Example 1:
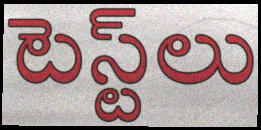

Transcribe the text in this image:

టెస్ట్‌లు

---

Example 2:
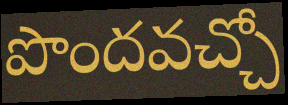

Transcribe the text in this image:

పొందవచ్చో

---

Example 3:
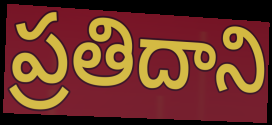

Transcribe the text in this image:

ప్రతిదాని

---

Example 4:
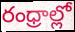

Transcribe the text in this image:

రంధ్రాల్లో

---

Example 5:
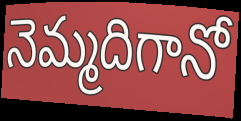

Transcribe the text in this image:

నెమ్మదిగానో